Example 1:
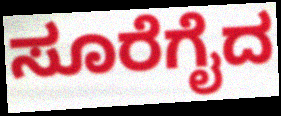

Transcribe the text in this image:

ಸೂರೆಗೈದ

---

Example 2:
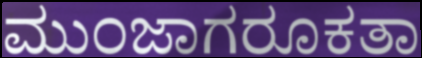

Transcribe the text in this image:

ಮುಂಜಾಗರೂಕತಾ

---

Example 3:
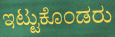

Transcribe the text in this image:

ಇಟ್ಟುಕೊಂಡರು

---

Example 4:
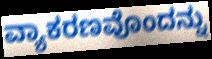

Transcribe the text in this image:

ವ್ಯಾಕರಣವೊಂದನ್ನು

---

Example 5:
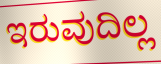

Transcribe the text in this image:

ಇರುವುದಿಲ್ಲ